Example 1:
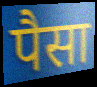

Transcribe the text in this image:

पैसा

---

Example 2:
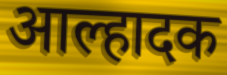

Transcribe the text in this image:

आल्हादक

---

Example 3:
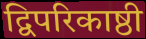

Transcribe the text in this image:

द्विपरिकाष्ठी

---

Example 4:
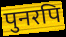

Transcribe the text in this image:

पुनरपि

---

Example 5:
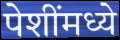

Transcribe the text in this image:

पेशींमध्ये